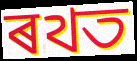
ৰথত